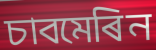
চাবমেৰিন